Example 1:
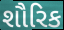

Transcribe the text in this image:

શૌરિક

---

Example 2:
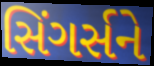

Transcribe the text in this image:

સિંગર્સને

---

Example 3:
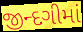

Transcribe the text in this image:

જીન્દગીમાં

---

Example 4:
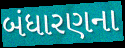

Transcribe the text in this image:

બંધારણના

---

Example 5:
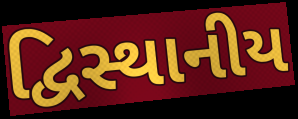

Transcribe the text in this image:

દ્વિસ્થાનીય